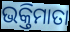
ଭକ୍ତିମାତା